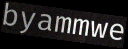
byammwe